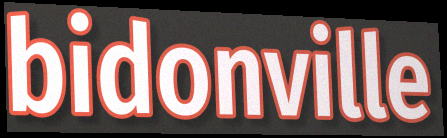
bidonville